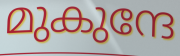
മുകുന്ദേ